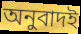
অনুবাদই